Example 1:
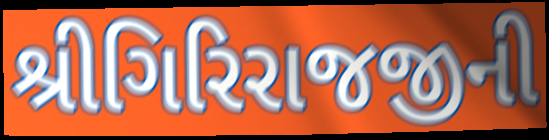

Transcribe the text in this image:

શ્રીગિરિરાજજીની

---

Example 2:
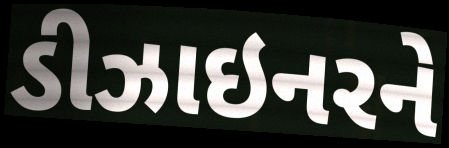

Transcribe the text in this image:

ડીઝાઇનરને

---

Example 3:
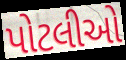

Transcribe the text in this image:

પોટલીઓ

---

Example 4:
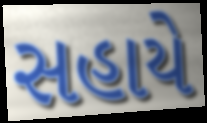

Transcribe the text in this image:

સહાયે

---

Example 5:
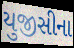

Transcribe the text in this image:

યુજીસીના